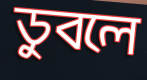
ডুবলে